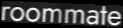
roommate